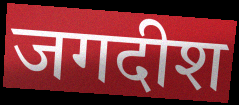
जगदीश